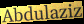
Abdulaziz